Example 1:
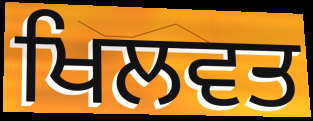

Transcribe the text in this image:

ਖਿਲਵਤ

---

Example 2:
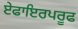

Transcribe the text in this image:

ਏਫਾਇਰਪਰੂਫ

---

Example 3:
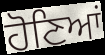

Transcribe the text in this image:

ਹੋਣਿਆਂ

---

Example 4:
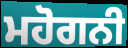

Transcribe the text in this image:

ਮਹੋਗਨੀ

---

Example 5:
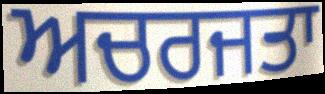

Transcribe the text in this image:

ਅਚਰਜਤਾ